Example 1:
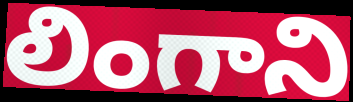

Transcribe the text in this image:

లింగాని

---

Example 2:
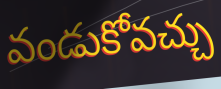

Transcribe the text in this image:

వండుకోవచ్చు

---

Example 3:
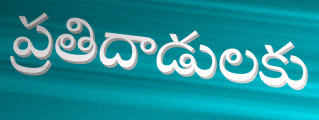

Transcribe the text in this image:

ప్రతిదాడులకు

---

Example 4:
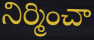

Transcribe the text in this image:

నిర్మించా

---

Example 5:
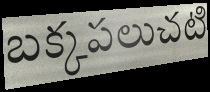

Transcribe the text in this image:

బక్కపలుచటి